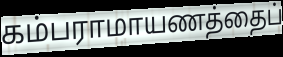
கம்பராமாயணத்தைப்